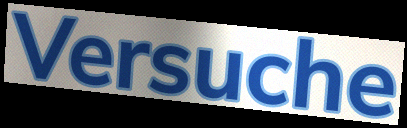
Versuche